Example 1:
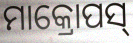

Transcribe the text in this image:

ମାକ୍ରୋପସ୍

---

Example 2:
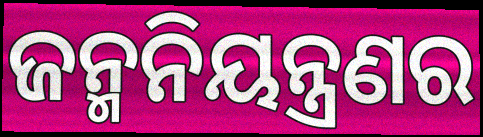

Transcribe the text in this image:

ଜନ୍ମନିୟନ୍ତ୍ରଣର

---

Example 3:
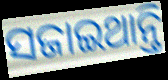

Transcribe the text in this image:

ସଜାଇଥାନ୍ତି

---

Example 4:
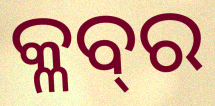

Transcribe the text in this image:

କ୍ଳବ୍‍ର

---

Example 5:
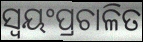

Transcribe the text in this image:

ସ୍ୱୟଂପ୍ରଚାଳିତ